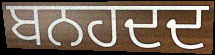
ਬਨਹਦਦ